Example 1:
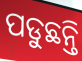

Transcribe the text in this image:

ପଡୁଛନ୍ତି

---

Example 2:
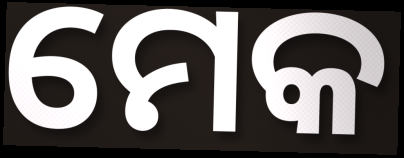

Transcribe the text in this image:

ମେକ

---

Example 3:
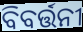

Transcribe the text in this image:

ବିବର୍ତ୍ତନୀ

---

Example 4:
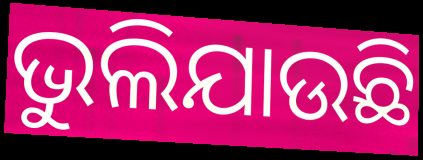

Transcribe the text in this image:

ଭୁଲିଯାଉଛି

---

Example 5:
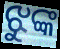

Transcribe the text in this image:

ଝୁଙ୍କ